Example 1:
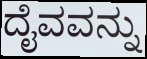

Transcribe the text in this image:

ದೈವವನ್ನು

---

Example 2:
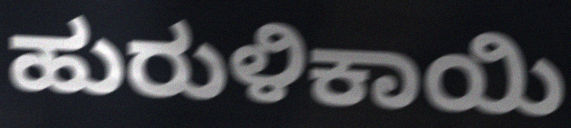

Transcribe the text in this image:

ಹುರುಳಿಕಾಯಿ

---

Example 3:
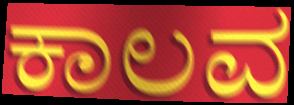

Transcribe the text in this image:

ಕಾಲವ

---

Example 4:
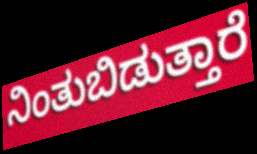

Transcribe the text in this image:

ನಿಂತುಬಿಡುತ್ತಾರೆ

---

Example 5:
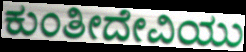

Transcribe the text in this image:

ಕುಂತೀದೇವಿಯು